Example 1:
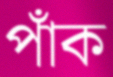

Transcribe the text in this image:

পাঁক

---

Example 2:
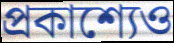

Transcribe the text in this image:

প্রকাশ্যেও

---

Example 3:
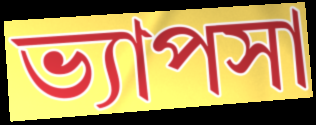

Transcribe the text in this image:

ভ্যাপসা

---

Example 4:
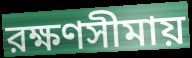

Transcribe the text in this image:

রক্ষণসীমায়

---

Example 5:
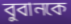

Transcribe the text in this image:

বুবানকে